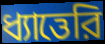
ধ্যাত্তেরি